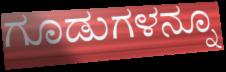
ಗೂಡುಗಳನ್ನೂ